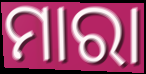
ମାରା